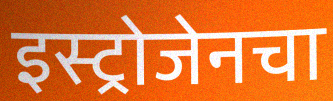
इस्ट्रोजेनचा